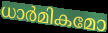
ധാർമികമോ